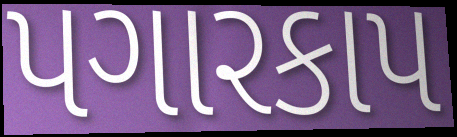
પગારકાપ